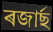
ৰজাৰ্ছ